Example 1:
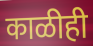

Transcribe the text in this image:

काळीही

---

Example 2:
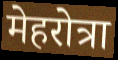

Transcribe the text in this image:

मेहरोत्रा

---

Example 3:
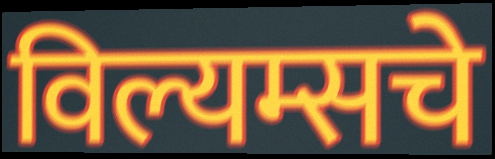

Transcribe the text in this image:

विल्यम्सचे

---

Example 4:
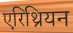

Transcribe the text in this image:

एरिथ्रियन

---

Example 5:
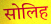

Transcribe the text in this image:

सोलिह